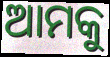
ଆମକୁ